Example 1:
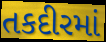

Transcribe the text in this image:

તકદીરમાં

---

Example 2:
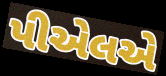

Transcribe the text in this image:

પીએલએ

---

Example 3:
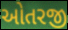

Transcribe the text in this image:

ઓતરજી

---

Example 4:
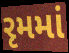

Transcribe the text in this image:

રૃમમાં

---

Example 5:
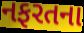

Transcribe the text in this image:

નફરતના